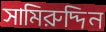
সামিরুদ্দিন